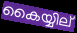
കൈയ്യില്